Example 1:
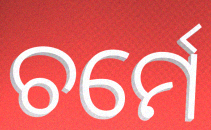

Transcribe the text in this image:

ଚର୍ମେ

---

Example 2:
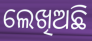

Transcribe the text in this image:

ଲେଖିଅଛି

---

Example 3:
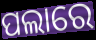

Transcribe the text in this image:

ପଲାରେ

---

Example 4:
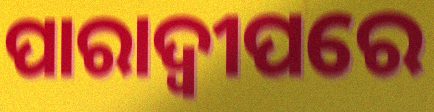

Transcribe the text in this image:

ପାରାଦ୍ୱୀପରେ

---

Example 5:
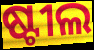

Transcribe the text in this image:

ଷ୍ଟୀଲ